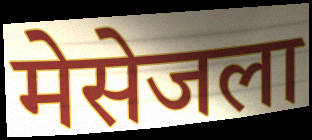
मेसेजला